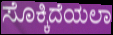
ಸೊಕ್ಕಿದೆಯಲಾ